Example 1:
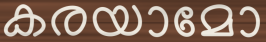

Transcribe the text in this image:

കരയാമോ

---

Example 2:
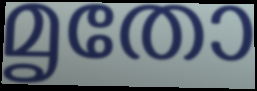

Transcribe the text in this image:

മൃതോ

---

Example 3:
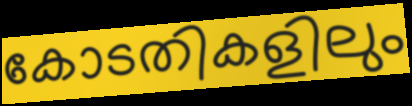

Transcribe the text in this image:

കോടതികളിലും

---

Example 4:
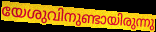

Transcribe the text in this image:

യേശുവിനുണ്ടായിരുന്നു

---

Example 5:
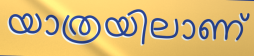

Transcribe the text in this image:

യാത്രയിലാണ്